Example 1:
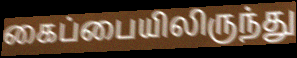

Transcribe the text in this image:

கைப்பையிலிருந்து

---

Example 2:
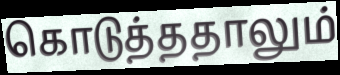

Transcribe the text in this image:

கொடுத்ததாலும்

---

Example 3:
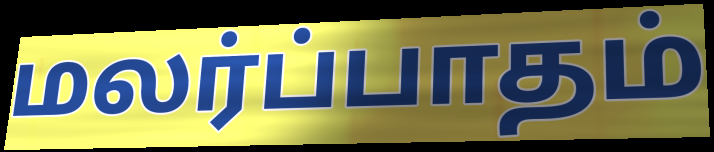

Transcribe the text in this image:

மலர்ப்பாதம்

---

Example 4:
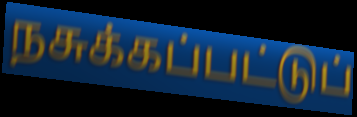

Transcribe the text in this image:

நசுக்கப்பட்டுப்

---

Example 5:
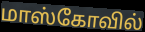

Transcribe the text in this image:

மாஸ்கோவில்